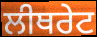
ਲੀਥਰੇਟ